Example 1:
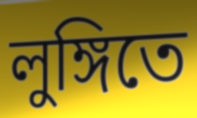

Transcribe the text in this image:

লুঙ্গিতে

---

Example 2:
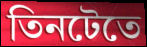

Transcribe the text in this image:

তিনটেতে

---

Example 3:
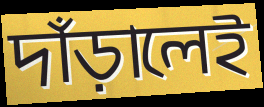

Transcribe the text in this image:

দাঁড়ালেই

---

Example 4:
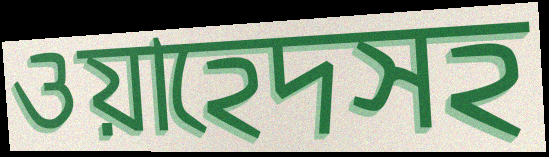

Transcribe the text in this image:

ওয়াহেদসহ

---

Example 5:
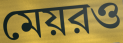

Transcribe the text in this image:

মেয়রও